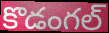
కొడంగల్